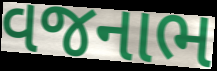
વજનાભ